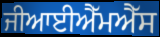
ਜੀਆਈਐੱਮਐੱਸ